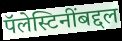
पॅलेस्टिनींबद्दल